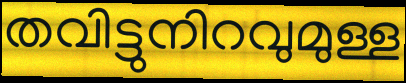
തവിട്ടുനിറവുമുള്ള